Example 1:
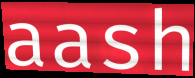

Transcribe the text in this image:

aash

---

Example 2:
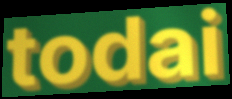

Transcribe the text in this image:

todai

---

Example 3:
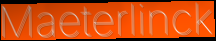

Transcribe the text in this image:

Maeterlinck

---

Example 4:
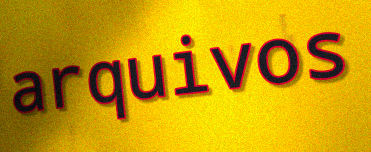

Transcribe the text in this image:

arquivos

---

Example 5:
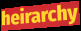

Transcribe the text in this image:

heirarchy